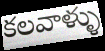
కలవాళ్ళు